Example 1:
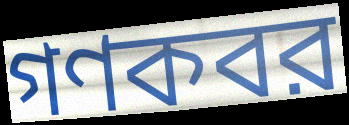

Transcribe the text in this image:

গণকবর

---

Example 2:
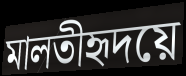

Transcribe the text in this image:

মালতীহৃদয়ে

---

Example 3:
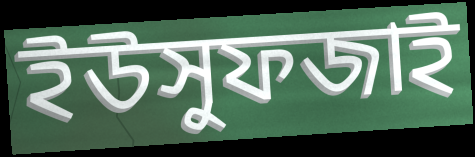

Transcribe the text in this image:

ইউসুফজাই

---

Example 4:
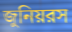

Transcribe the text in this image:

জুনিয়রস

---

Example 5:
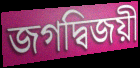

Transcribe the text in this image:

জগদ্বিজয়ী